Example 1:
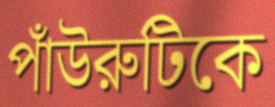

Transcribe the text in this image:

পাঁউরুটিকে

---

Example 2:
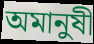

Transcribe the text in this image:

অমানুষী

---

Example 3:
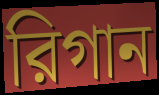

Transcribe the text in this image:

রিগান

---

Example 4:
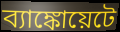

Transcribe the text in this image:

ব্যাঙ্কোয়েটে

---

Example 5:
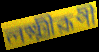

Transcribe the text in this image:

লক্ষ্মীরূপী